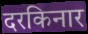
दरकिनार